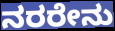
ನರರೇನು